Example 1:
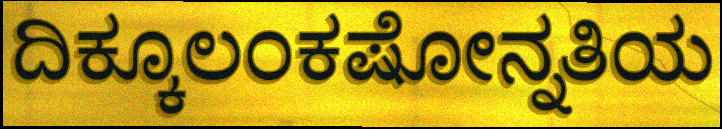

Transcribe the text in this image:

ದಿಕ್ಕೂಲಂಕಷೋನ್ನತಿಯ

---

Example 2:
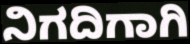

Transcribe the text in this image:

ನಿಗದಿಗಾಗಿ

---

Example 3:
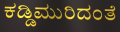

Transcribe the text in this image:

ಕಡ್ಡಿಮುರಿದಂತೆ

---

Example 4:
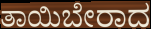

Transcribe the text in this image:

ತಾಯಿಬೇರಾದ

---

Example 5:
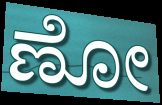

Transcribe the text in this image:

ಣೋ